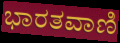
ಭಾರತವಾಣಿ